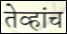
तेव्हांच